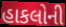
હાકલોની